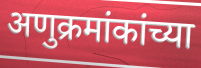
अणुक्रमांकांच्या